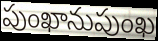
పుంఖానుపుంఖ